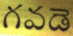
గవడె